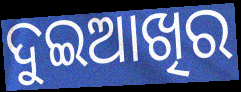
ଦୁଇଆଖିର